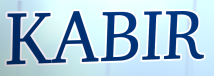
KABIR